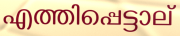
എത്തിപ്പെട്ടാല്